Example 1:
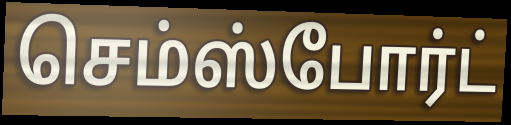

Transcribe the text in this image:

செம்ஸ்போர்ட்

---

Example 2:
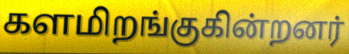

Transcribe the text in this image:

களமிறங்குகின்றனர்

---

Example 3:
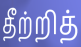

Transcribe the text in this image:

தீற்றித்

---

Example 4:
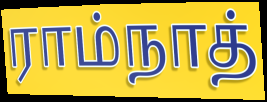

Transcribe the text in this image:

ராம்நாத்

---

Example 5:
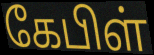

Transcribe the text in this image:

கேபிள்